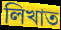
লিখাত